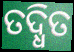
ତଦ୍ଧିତ